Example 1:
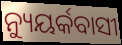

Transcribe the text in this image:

ନ୍ୟୁୟର୍କବାସୀ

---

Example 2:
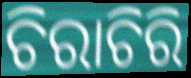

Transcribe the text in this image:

ଚିରାଚିରି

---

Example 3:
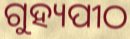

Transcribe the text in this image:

ଗୁହ୍ୟପୀଠ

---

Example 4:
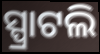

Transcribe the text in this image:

ସ୍ପ୍ରାଟଲି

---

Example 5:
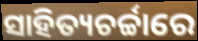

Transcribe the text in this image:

ସାହିତ୍ୟଚର୍ଚ୍ଚାରେ